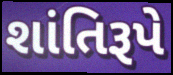
શાંતિરૂપે